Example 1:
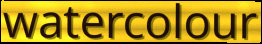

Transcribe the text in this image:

watercolour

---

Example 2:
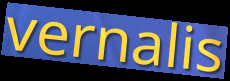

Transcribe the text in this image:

vernalis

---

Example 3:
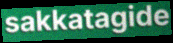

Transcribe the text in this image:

sakkatagide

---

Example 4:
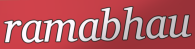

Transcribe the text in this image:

ramabhau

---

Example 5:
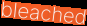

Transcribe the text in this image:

bleached